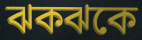
ঝকঝকে